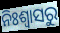
ନିଃଶ୍ବାସରୁ